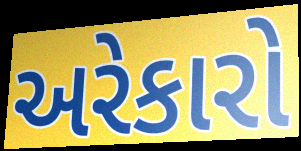
અરેકારો